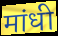
मांधी